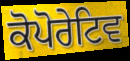
ਕੋਪੋਰੇਟਿਵ